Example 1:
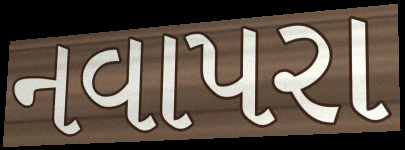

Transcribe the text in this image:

નવાપરા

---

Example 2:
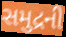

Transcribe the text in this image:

સમુદ્રની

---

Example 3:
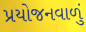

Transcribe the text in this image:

પ્રયોજનવાળું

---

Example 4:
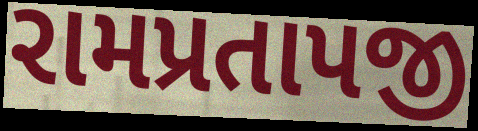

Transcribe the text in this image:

રામપ્રતાપજી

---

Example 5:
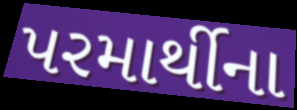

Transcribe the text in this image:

પરમાર્થીના